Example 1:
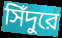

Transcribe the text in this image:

সিঁদুরে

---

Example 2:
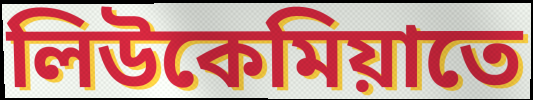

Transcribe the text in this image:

লিউকেমিয়াতে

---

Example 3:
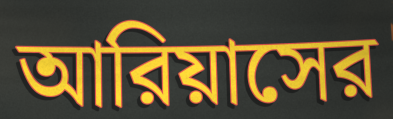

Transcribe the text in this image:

আরিয়াসের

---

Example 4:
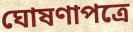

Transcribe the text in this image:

ঘোষণাপত্রে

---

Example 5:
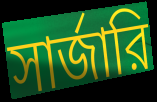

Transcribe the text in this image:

সার্জারি